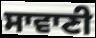
ਸਾਵਾਣੀ